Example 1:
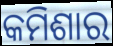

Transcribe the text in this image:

କମିଶାର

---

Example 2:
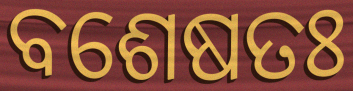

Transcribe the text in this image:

ବଶେଷତଃ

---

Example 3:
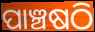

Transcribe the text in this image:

ପାଞ୍ଚଷଠି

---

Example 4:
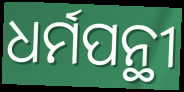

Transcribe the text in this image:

ଧର୍ମପନ୍ଥୀ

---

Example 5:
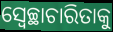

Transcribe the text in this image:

ସ୍ଵେଚ୍ଛାଚାରିତାକୁ